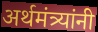
अर्थमंत्र्यांनी